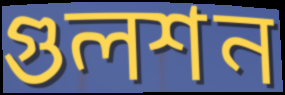
গুলশন